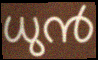
ധുൻ